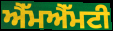
ਐੱਮਐੱਮਟੀ